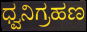
ಧ್ವನಿಗ್ರಹಣ